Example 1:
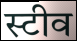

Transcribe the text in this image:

स्‍टीव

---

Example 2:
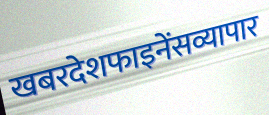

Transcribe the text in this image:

खबरदेशफाइनेंसव्यापार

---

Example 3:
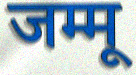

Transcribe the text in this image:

जम्मू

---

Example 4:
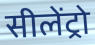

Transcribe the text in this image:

सीलेंट्रो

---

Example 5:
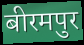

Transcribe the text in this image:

बीरमपुर